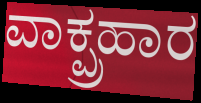
ವಾಕ್ಪ್ರಹಾರ